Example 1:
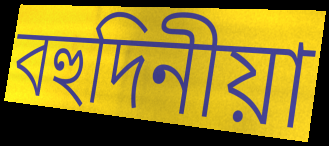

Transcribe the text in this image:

বহুদিনীয়া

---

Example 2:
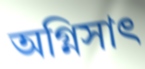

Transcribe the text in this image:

অগ্নিসাৎ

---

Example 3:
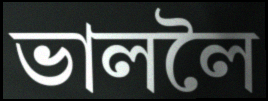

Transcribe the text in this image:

ভাললৈ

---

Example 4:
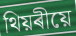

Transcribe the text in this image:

থিয়ৰীয়ে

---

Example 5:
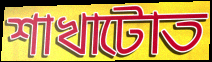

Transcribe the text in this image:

শাখাটোত